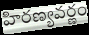
హిరణ్యవర్ణం